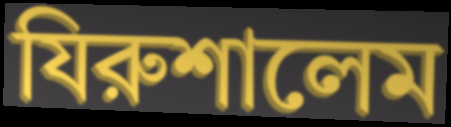
যিরুশালেম